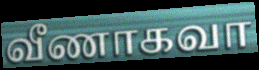
வீணாகவா